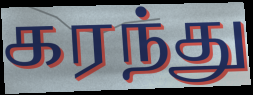
கரந்து